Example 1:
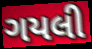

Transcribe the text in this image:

ગયલી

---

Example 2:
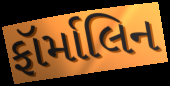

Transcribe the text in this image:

ફૉર્માલિન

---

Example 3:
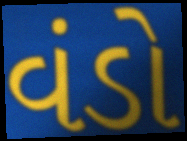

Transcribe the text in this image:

વંડો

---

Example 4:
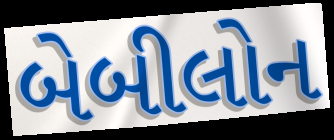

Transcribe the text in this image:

બેબીલોન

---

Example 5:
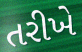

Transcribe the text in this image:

તરીખે